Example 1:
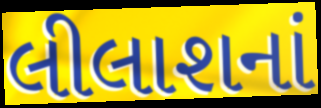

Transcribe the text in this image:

લીલાશનાં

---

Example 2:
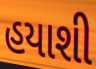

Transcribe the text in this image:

હયાશી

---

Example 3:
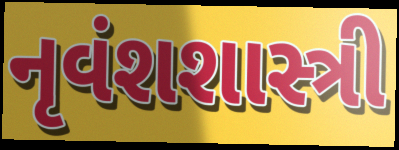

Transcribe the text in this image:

નૃવંશશાસ્ત્રી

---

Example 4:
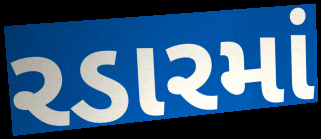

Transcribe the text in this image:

રડારમાં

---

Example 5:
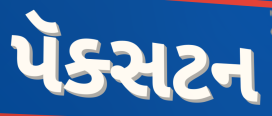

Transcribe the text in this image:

પૅક્સટન